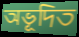
অভূদিত